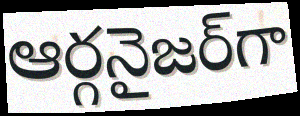
ఆర్గనైజర్‌గా